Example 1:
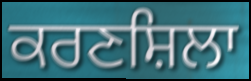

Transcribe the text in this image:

ਕਰਣਸ਼ਿਲਾ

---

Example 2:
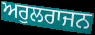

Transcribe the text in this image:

ਅਰੁਲਰਾਜਨ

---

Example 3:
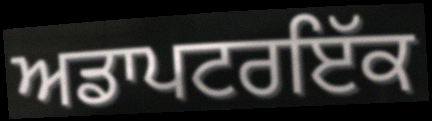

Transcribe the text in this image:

ਅਡਾਪਟਰਇੱਕ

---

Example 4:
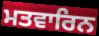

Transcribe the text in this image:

ਮਤਵਾਰਿਨ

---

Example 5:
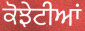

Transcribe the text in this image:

ਕੋਝੇਟੀਆਂ